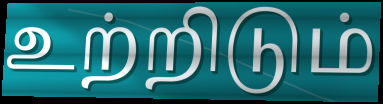
உற்றிடும்